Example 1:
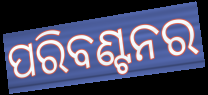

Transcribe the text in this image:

ପରିବଣ୍ଟନର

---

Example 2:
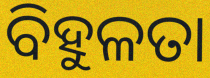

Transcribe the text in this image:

ବିହୁଳତା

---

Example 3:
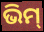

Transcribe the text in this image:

ଭିମ୍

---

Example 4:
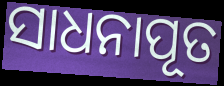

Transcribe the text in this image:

ସାଧନାପୂତ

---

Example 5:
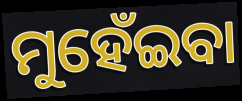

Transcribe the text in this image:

ମୁହେଁଇବା